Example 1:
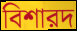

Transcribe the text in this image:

বিশারদ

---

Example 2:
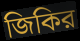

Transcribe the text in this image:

জিকির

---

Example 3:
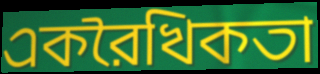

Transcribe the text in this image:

একরৈখিকতা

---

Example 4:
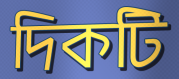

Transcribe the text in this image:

দিকটি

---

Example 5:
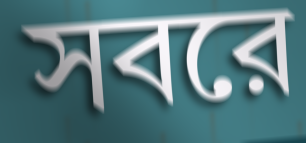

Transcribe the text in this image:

সবরে